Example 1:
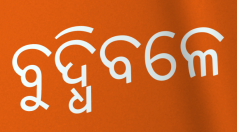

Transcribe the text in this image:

ବୁଦ୍ଧିବଳେ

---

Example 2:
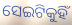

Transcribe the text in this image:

ସେଇଟିକୁହିଁ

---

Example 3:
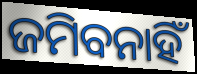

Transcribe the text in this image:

ଜମିବନାହିଁ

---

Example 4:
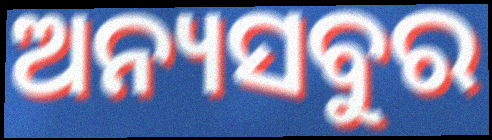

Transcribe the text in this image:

ଅନ୍ୟସବୁର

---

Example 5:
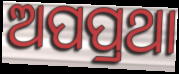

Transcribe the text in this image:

ଅପପ୍ରଥା